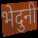
भेदुनी